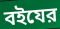
বইযের